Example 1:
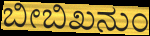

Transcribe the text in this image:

ಬೀಬಿಖನುಂ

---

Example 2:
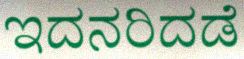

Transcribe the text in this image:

ಇದನರಿದಡೆ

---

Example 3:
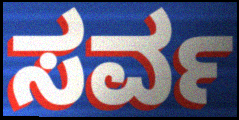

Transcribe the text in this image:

ಸರ್ವ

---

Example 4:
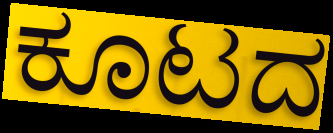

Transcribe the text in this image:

ಕೂಟದ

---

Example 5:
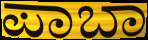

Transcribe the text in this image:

ಪಾಬಾ